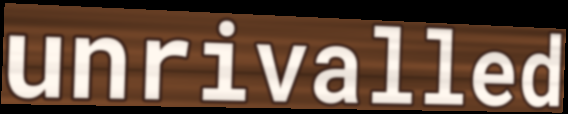
unrivalled